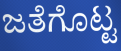
ಜತೆಗೊಟ್ಟ